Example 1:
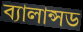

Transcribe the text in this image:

ব্যালান্সড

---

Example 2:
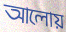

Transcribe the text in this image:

আলোয়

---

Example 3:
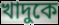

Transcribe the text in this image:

খাদুকে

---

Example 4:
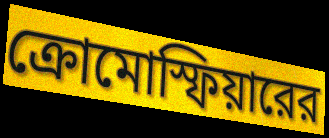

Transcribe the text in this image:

ক্রোমোস্ফিয়ারের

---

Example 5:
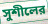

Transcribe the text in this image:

সুশীলের